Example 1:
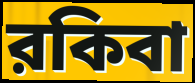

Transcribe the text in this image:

রকিবা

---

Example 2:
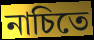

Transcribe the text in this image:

নাচিতে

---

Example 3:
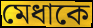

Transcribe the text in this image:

মেধাকে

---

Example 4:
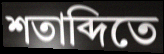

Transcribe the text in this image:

শতাব্দিতে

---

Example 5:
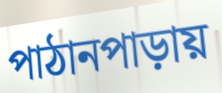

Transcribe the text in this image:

পাঠানপাড়ায়